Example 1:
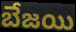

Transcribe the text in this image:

బేజయి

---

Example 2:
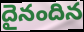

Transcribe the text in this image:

దైనందిన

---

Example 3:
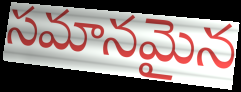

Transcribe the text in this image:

సమానమైన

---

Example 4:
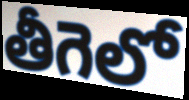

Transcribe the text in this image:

తీగెలో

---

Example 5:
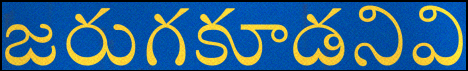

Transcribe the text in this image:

జరుగకూడనివి